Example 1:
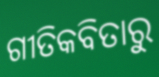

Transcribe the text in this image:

ଗୀତିକବିତାରୁ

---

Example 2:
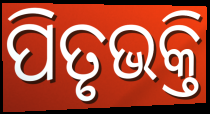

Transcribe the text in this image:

ପିତୃଭକ୍ତି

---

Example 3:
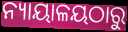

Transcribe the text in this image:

ନ୍ୟାୟାଳୟଠାରୁ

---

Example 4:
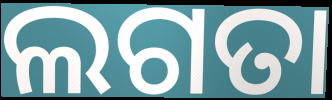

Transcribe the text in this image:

ଲଗତା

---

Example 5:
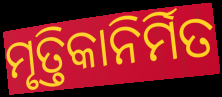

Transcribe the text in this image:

ମୃତ୍ତିକାନିର୍ମିତ